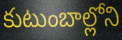
కుటుంబాల్లోని